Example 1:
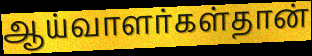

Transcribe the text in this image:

ஆய்வாளர்கள்தான்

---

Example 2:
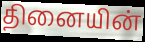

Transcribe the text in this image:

தினையின்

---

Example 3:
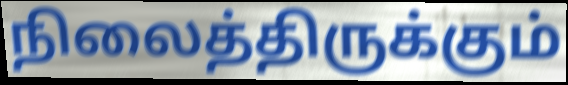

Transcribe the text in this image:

நிலைத்திருக்கும்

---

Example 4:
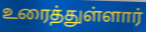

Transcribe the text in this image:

உரைத்துள்ளார்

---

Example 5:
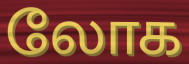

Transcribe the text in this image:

லோக